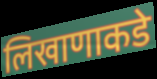
लिखाणाकडे